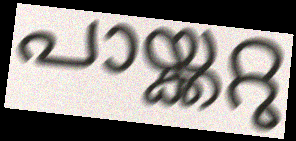
പായ്ക്കറ്റു